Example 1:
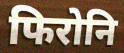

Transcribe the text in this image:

फिरोनि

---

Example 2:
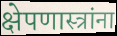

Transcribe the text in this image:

क्षेपणास्त्रांना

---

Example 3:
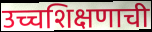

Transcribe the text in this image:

उच्चशिक्षणाची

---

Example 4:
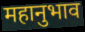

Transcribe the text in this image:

महानुभाव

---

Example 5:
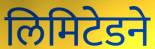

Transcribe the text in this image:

लिमिटेडने